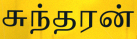
சுந்தரன்